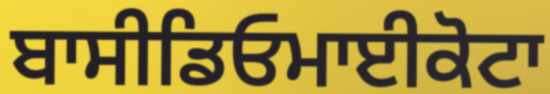
ਬਾਸੀਡਿਓਮਾਈਕੋਟਾ